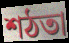
শঠতা